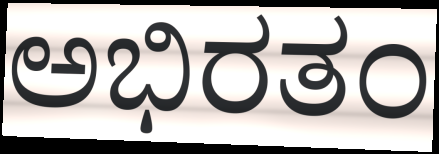
ಅಭಿರತಂ